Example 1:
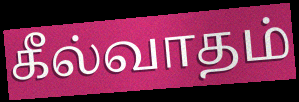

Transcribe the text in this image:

கீல்வாதம்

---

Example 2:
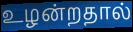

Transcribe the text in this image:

உழன்றதால்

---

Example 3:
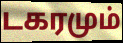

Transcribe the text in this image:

டகரமும்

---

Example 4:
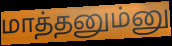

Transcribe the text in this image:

மாத்தனும்னு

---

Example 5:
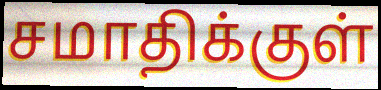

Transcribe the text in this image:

சமாதிக்குள்